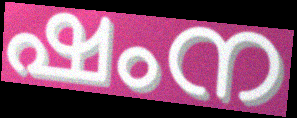
ഷംന